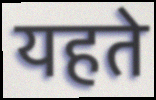
यहते